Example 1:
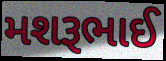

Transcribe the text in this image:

મશરૂભાઈ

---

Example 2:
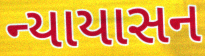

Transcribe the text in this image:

ન્યાયાસન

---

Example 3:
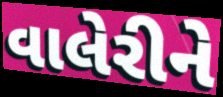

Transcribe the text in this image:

વાલેરીને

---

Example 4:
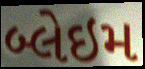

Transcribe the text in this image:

બ્લેઇમ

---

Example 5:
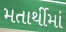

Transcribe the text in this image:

મતાર્થીમાં